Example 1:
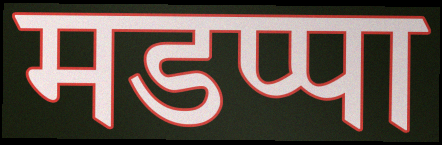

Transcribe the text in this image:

मडप्पा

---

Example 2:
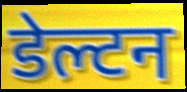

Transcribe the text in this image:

डेल्टन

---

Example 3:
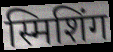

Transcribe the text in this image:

स्मिशिंग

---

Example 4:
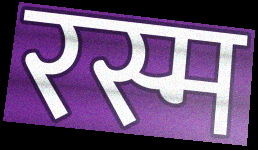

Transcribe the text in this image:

रस्म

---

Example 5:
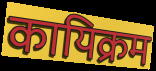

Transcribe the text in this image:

कायिक्रम